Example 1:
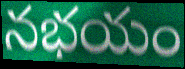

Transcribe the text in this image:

నభయం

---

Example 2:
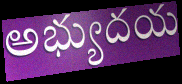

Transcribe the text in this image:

అభ్యుదయ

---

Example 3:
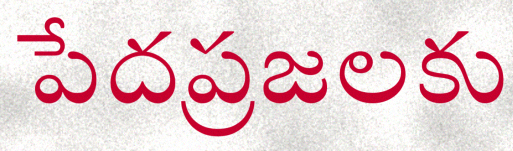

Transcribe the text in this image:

పేదప్రజలకు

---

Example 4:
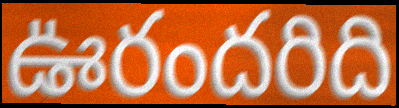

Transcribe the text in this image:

ఊరందరిది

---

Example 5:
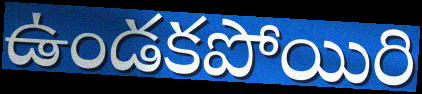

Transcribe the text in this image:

ఉండకపోయిరి